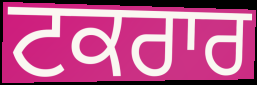
ਟਕਰਾਰ